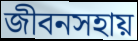
জীবনসহায়